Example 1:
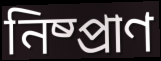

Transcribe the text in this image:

নিষ্প্রাণ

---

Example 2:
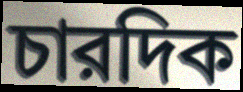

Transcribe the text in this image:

চারদিক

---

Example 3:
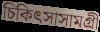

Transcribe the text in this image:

চিকিৎসাসামগ্রী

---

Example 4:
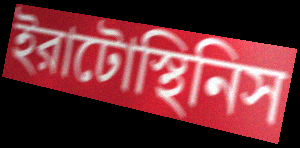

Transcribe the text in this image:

ইরাটোস্থিনিস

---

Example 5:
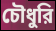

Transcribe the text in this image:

চৌধুরি